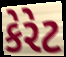
કેરેટ